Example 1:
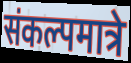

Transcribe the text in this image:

संकल्पमात्रे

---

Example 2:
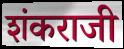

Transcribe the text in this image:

शंकराजी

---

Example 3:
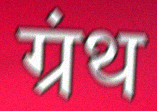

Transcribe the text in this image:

ग्रंथ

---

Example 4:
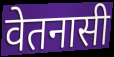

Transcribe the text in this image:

वेतनासी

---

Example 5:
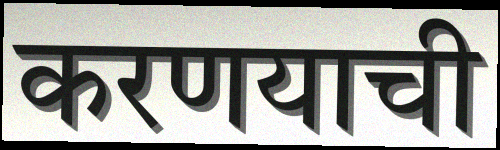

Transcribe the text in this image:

करणयाची